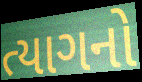
ત્યાગનો